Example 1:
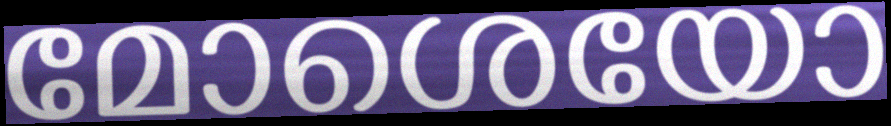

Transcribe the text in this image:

മോശെയോ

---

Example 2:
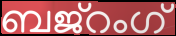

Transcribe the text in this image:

ബജ്റംഗ്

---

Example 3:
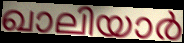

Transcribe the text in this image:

ഖാലിയാർ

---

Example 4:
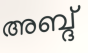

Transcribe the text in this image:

അബ്ദ്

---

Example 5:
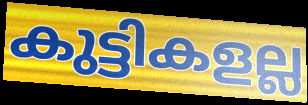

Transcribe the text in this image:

കുട്ടികളല്ല